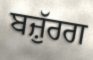
ਬਜ਼ੁੱਰਗ